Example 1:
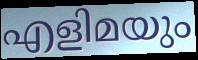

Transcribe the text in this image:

എളിമയും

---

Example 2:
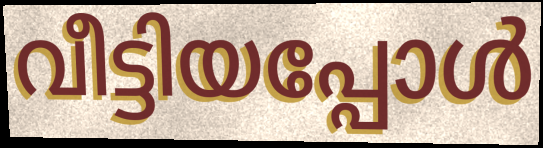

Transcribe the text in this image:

വീട്ടിയപ്പോൾ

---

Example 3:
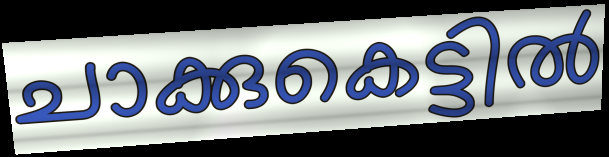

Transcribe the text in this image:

ചാക്കുകെട്ടിൽ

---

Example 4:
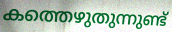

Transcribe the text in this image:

കത്തെഴുതുന്നുണ്ട്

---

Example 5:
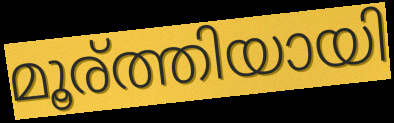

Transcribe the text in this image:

മൂര്ത്തിയായി